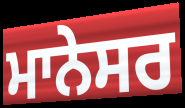
ਮਾਨੇਸਰ